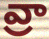
వ్రా